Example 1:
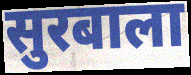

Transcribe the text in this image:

सुरबाला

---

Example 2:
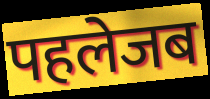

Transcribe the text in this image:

पहलेजब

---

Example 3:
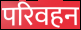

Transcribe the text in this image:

परिवहन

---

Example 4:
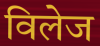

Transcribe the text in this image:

विलेज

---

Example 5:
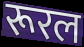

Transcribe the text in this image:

रूरल